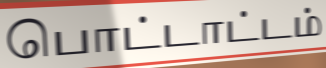
பொட்டாட்டம்